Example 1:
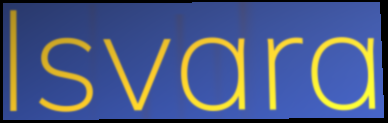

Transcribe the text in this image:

Isvara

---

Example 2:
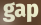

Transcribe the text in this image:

gap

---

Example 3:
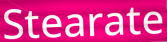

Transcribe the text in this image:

Stearate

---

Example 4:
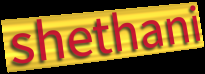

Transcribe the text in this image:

shethani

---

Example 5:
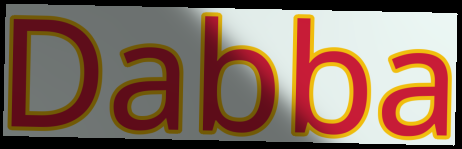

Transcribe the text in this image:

Dabba